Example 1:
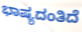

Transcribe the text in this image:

ಭಾಷ್ಯದಂತಿದೆ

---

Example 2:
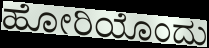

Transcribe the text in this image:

ಹೋರಿಯೊಂದು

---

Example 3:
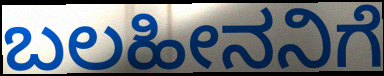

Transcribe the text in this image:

ಬಲಹೀನನಿಗೆ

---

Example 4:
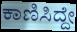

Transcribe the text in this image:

ಕಾಣಿಸಿದ್ದೇ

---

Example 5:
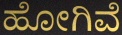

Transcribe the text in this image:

ಹೋಗಿವೆ